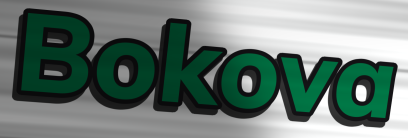
Bokova